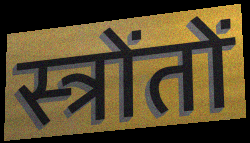
स्त्रोंतों